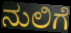
ನುಲಿಗೆ